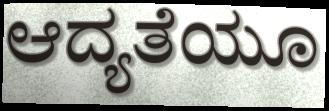
ಆದ್ಯತೆಯೂ